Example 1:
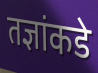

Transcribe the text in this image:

तज्ञांकडे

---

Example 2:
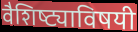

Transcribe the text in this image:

वैशिष्ट्याविषयी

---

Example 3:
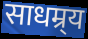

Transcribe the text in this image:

साधम्र्य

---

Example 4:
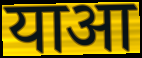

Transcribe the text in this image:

याआ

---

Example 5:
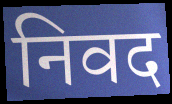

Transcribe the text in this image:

निवद